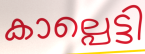
കാല്പെട്ടി